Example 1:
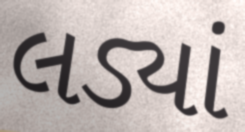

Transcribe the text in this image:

લડ્યાં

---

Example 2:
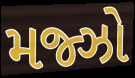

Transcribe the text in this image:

મજ્ઝો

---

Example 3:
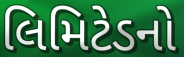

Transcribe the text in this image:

લિમિટેડનો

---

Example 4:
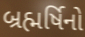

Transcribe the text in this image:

બ્રહ્મર્ષિનો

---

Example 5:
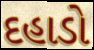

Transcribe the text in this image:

દહાડો